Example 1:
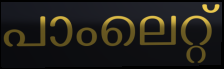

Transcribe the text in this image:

പാംലെറ്റ്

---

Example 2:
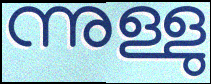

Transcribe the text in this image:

ന്നുള്ളു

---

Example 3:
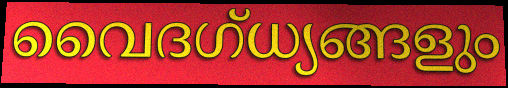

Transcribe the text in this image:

വൈദഗ്ധ്യങ്ങളും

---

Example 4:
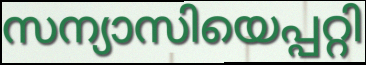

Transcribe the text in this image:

സന്യാസിയെപ്പറ്റി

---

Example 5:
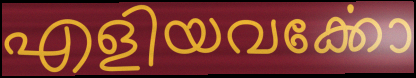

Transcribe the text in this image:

എളിയവൎക്കോ